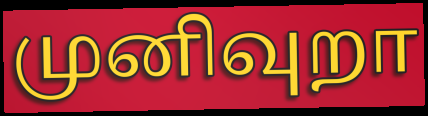
முனிவுறா